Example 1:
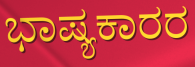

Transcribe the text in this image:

ಭಾಷ್ಯಕಾರರ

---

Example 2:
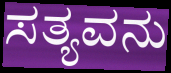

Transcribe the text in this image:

ಸತ್ಯವನು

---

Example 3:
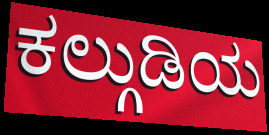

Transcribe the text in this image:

ಕಲ್ಗುಡಿಯ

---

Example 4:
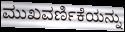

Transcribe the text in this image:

ಮುಖವರ್ಣಿಕೆಯನ್ನು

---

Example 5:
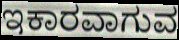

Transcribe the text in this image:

ಇಕಾರವಾಗುವ